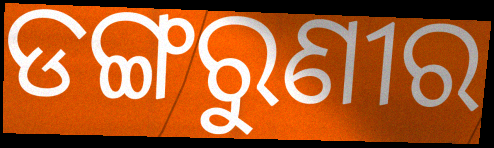
ଡଙ୍ଗରୁଣୀର